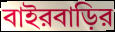
বাইরবাড়ির